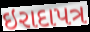
ઇરાદાપત્ર